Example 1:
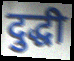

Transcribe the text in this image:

दुद्धी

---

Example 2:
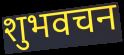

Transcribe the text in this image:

शुभवचन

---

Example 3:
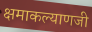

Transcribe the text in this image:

क्षमाकल्याणजी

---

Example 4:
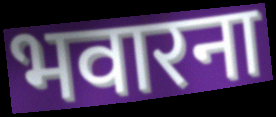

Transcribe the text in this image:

भवारना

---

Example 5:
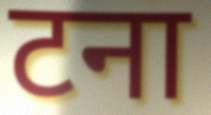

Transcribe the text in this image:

टना